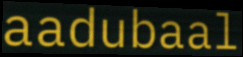
aadubaal